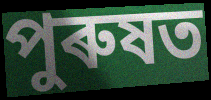
পুৰুষত